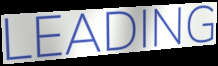
LEADING